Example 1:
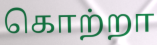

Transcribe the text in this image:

கொற்றா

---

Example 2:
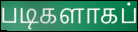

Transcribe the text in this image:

படிகளாகப்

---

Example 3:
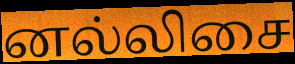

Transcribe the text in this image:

னல்லிசை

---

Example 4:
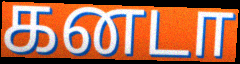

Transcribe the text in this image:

கனடா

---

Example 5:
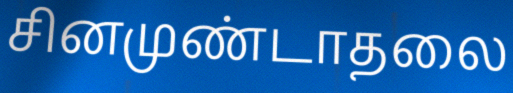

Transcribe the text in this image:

சினமுண்டாதலை